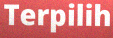
Terpilih